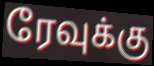
ரேவுக்கு